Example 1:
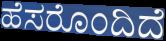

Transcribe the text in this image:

ಹೆಸರೊಂದಿದೆ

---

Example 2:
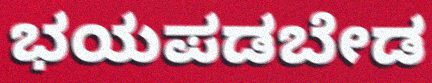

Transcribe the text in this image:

ಭಯಪಡಬೇಡ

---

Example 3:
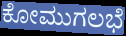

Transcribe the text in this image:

ಕೋಮುಗಲಭೆ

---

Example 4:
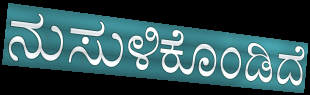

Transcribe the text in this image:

ನುಸುಳಿಕೊಂಡಿದೆ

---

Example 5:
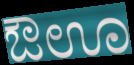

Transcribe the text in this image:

ಔಊ